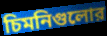
চিমনিগুলোর